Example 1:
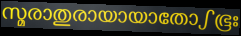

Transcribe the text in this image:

സ്മരാതുരായായാതോഽഭൂഃ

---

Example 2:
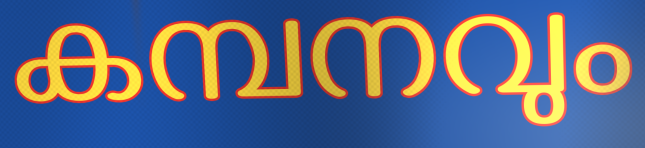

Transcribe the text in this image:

കമ്പനവും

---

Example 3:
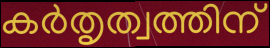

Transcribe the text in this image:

കർതൃത്വത്തിന്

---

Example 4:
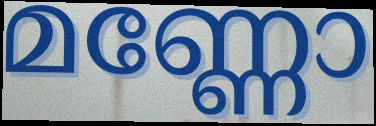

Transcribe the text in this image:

മണ്ണോ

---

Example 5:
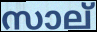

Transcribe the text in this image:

സാല്